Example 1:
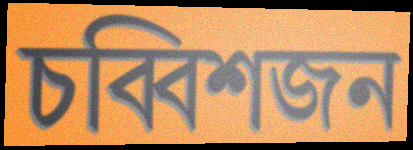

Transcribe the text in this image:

চব্বিশজন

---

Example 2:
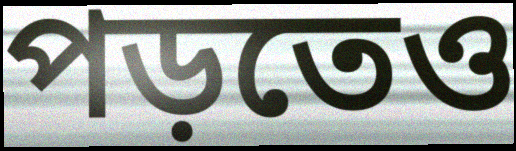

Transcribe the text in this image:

পড়তেও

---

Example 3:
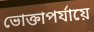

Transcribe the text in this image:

ভোক্তাপর্যায়ে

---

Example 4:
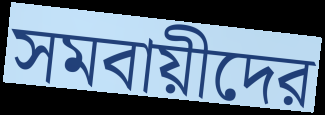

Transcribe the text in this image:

সমবায়ীদের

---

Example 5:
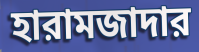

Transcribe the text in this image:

হারামজাদার